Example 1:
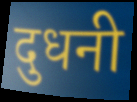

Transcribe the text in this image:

दुधनी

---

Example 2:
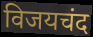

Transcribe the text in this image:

विजयचंद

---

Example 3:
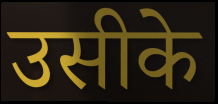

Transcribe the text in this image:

उसीके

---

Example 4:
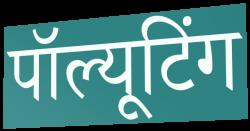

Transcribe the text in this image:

पॉल्यूटिंग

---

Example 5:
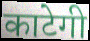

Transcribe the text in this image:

काटेगी